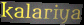
kalariya